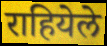
राहियेले